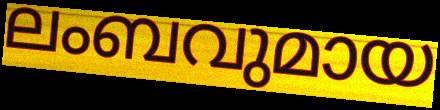
ലംബവുമായ